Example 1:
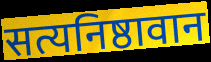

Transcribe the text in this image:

सत्यनिष्ठावान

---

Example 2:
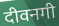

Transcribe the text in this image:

दीवनगी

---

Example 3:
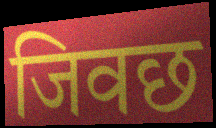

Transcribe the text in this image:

जिवछ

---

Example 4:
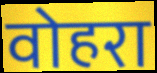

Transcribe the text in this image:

वोहरा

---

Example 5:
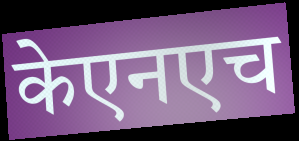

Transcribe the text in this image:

केएनएच